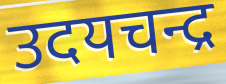
उदयचन्द्र